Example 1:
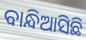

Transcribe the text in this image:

ବାନ୍ଧିଆସିଛି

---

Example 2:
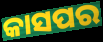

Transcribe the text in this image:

କାସପର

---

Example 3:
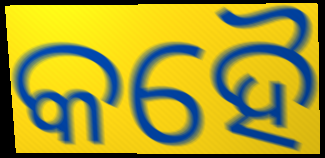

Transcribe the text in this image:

କହୈ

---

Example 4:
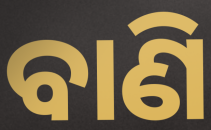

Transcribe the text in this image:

ବାଣି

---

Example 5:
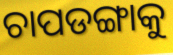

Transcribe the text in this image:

ଚାପଡଙ୍ଗାକୁ